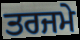
ਤਰਜਮੇ